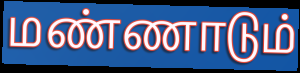
மண்ணாடும்